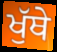
ਖੁੱਥੇ